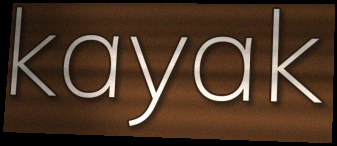
kayak